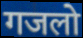
गजलो